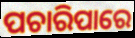
ପଚାରିପାରେ